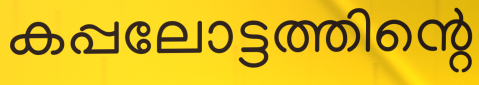
കപ്പലോട്ടത്തിന്റെ